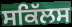
ਸਕਿੱਲਸ